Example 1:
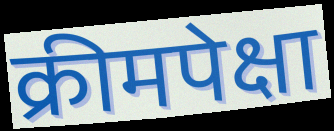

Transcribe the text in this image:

क्रीमपेक्षा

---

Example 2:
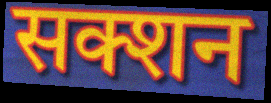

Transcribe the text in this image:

सक्शन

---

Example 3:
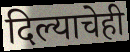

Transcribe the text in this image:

दिल्याचेही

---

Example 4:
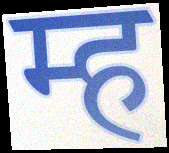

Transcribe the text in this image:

म्ह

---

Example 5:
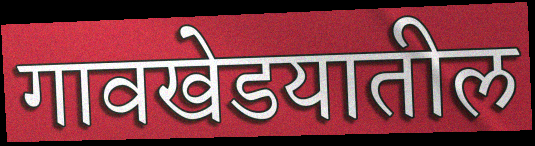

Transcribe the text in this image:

गावखेडयातील